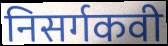
निसर्गकवी